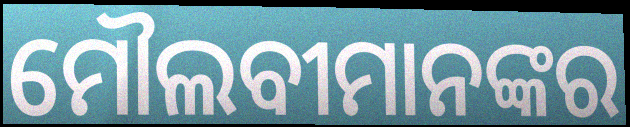
ମୌଲବୀମାନଙ୍କର